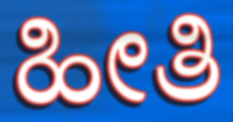
ಹೀತಿ